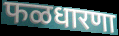
फळधारणा